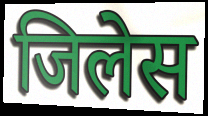
जिलेस